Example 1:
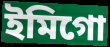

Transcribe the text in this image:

ইমিগো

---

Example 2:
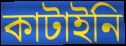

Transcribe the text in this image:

কাটাইনি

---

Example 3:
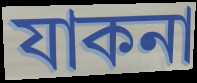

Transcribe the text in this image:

যাকনা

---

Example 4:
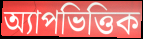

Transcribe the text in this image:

অ্যাপভিত্তিক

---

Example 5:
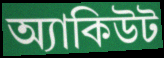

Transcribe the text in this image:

অ্যাকিউট